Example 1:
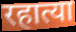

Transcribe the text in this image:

रहात्या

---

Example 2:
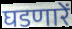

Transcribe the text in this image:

घडणारें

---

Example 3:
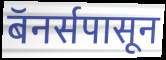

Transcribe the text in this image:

बॅनर्सपासून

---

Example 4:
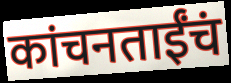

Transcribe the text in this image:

कांचनताईंचं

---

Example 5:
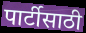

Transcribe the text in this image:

पार्टीसाठी